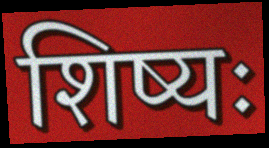
शिष्यः